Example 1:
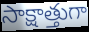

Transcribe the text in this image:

సాక్షాత్తుగా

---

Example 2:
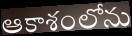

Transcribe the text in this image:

ఆకాశంలోను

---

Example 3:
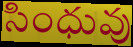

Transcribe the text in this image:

సింధువు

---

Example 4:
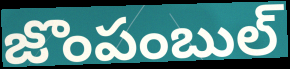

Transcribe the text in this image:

జొంపంబుల్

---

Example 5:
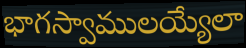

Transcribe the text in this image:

భాగస్వాములయ్యేలా